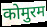
कोमुरम